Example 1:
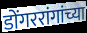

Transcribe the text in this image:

डोंगररांगांच्या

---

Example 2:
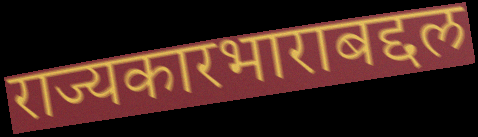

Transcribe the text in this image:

राज्यकारभाराबद्दल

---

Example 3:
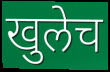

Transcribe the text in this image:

खुलेच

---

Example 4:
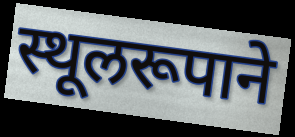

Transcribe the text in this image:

स्थूलरूपाने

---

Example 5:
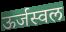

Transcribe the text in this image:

ऊर्जस्वल